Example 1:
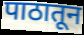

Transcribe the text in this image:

पाठातून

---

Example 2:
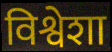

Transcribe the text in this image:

विश्वेशा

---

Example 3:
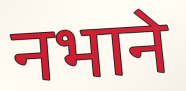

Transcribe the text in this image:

नभाने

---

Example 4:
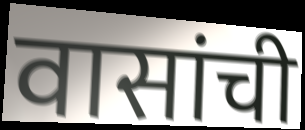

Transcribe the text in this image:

वासांची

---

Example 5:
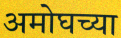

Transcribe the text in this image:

अमोघच्या